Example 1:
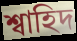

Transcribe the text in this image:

শ্বাহিদ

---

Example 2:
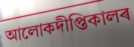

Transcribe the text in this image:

আলোকদীপ্তিকালৰ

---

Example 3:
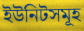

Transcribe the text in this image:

ইউনিটসমূহ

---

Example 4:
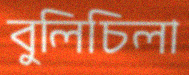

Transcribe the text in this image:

বুলিচিলা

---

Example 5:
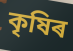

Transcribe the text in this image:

কৃষিৰ